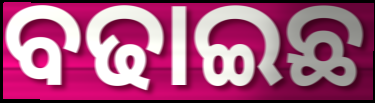
ବଢାଇଛ